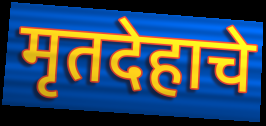
मृतदेहाचे